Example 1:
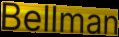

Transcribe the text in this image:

Bellman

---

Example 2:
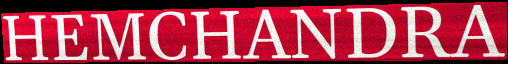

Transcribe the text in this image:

HEMCHANDRA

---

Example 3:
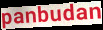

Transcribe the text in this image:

panbudan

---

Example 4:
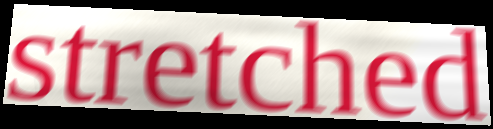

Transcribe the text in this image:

stretched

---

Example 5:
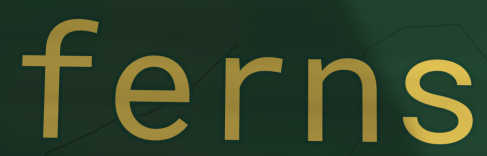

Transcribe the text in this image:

ferns